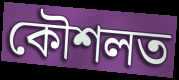
কৌশলত